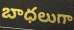
బాధలుగా